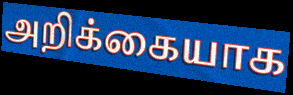
அறிக்கையாக